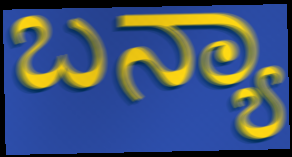
ಬನ್ಯಾ